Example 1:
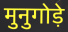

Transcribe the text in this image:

मुनुगोड़े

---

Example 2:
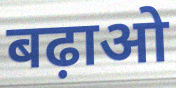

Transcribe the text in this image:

बढ़ाओ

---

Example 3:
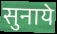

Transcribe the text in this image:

सुनाये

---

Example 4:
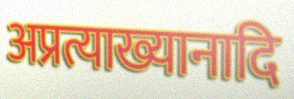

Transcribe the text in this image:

अप्रत्याख्यानादि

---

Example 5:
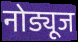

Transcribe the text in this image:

नोड्यूज